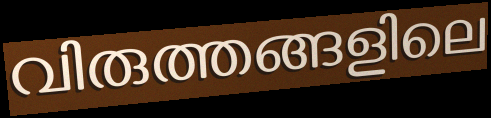
വിരുത്തങ്ങളിലെ